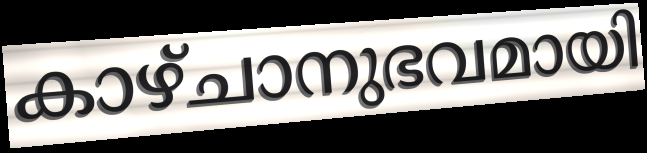
കാഴ്ചാനുഭവമായി